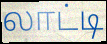
லாட்டி